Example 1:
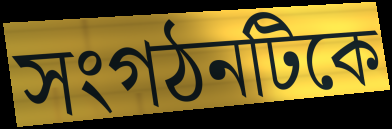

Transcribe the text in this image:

সংগঠনটিকে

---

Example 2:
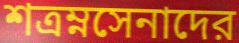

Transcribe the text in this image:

শত্রম্নসেনাদের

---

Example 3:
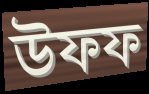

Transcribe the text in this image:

উফফ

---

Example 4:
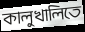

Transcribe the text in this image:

কালুখালিতে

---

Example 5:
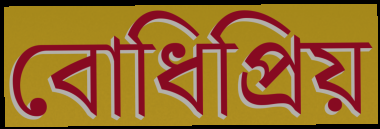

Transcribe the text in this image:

বোধিপ্রিয়